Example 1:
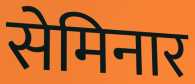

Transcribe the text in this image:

सेमिनार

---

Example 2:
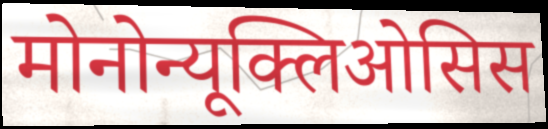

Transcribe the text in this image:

मोनोन्यूक्लिओसिस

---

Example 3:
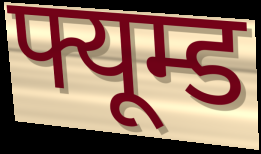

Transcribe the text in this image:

फ्यूम्ड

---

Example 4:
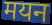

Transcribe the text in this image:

मयन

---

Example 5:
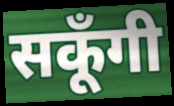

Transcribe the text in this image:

सकूँगी